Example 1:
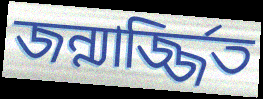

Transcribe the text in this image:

জন্মার্জ্জিত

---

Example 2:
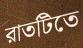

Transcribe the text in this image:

রাতটিতে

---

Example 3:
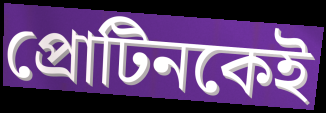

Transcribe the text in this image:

প্রোটিনকেই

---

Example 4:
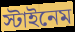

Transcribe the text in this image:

স্টাইনেম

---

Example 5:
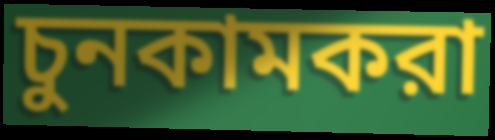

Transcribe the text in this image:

চুনকামকরা